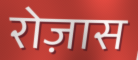
रोज़ास